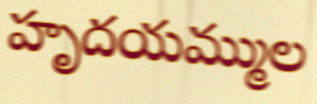
హృదయమ్ముల